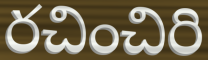
రచించిరి